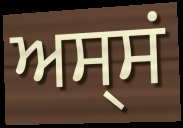
ਅਸ੍ਸਂ